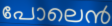
പോലെൻ